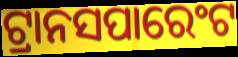
ଟ୍ରାନସପାରେଂଟ